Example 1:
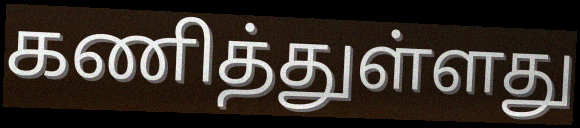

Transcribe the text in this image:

கணித்துள்ளது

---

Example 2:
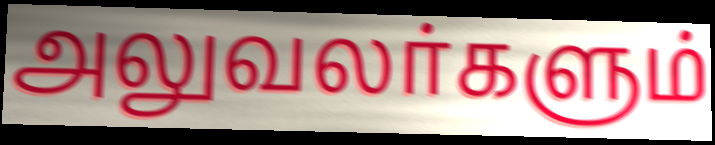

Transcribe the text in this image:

அலுவலர்களும்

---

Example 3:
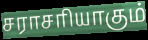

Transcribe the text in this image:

சராசரியாகும்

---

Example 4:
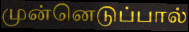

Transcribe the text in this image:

முன்னெடுப்பால்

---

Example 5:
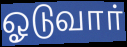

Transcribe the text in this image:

ஓடுவார்